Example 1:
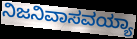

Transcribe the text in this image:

ನಿಜನಿವಾಸವಯ್ಯಾ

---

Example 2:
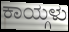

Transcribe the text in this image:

ಕಾಯ್ಗಳು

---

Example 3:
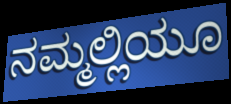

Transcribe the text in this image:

ನಮ್ಮಲ್ಲಿಯೂ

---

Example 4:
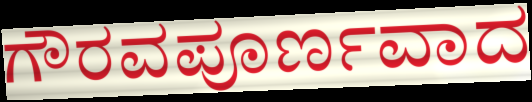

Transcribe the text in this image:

ಗೌರವಪೂರ್ಣವಾದ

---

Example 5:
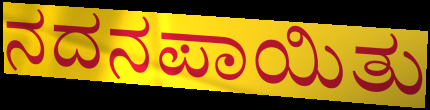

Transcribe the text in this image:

ನದನಪಾಯಿತು